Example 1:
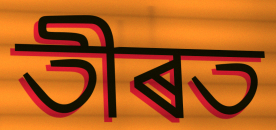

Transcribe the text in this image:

তীৰত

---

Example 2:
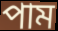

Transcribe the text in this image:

পাম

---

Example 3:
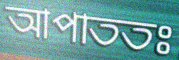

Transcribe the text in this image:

আপাততঃ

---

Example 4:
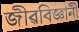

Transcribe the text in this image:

জীৱবিজ্ঞানী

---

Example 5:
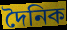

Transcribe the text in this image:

দৈনিক